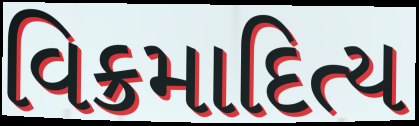
વિક્રમાદિત્‍ય